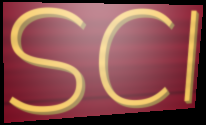
SCI